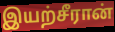
இயற்சீரான்